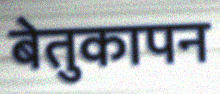
बेतुकापन